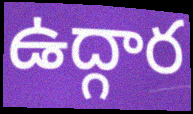
ఉద్గార